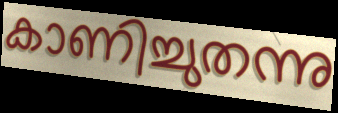
കാണിച്ചുതന്നു